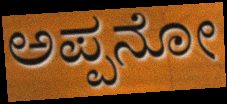
ಅಪ್ಪನೋ